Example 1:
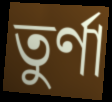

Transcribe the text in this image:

তুর্ণা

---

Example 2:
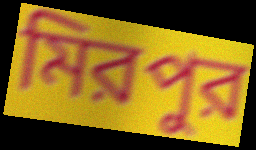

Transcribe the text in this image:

মিরপুর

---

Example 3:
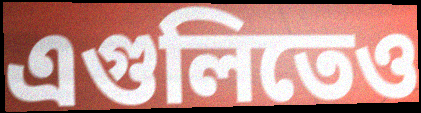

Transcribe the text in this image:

এগুলিতেও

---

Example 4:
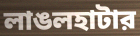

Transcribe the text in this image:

লাঙলহাটার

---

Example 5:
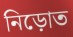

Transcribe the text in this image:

নিড়োত